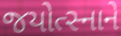
જયોત્સ્નાને